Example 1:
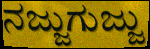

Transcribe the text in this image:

ನಜ್ಜುಗುಜ್ಜು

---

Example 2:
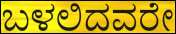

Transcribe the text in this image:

ಬಳಲಿದವರೇ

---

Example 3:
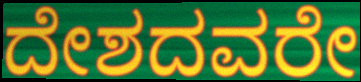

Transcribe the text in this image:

ದೇಶದವರೇ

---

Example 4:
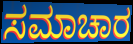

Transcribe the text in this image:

ಸಮಾಚಾರ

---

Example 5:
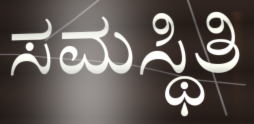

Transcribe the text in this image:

ಸಮಸ್ಥಿತಿ